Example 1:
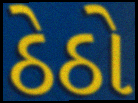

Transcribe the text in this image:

ઠેઠો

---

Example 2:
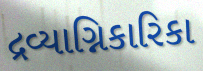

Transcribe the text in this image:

દ્રવ્યાગ્નિકારિકા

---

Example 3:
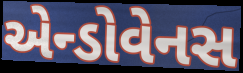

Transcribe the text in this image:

એન્ડોવેનસ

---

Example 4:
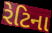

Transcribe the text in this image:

રેટિના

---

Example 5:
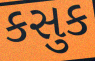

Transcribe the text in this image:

કસુક